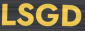
LSGD